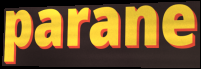
parane